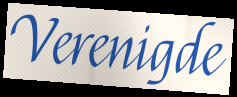
Verenigde